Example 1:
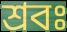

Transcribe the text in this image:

শ্রবঃ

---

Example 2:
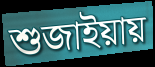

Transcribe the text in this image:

শুজাইয়ায়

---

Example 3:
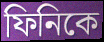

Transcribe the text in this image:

ফিনিকে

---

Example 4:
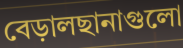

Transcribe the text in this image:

বেড়ালছানাগুলো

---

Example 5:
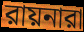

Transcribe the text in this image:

রায়নারা